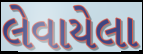
લેવાયેલા